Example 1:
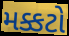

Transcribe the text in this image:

મક્કટો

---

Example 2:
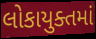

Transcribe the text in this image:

લોકાયુક્તમાં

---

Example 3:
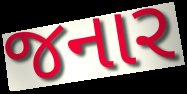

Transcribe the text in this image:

જનાર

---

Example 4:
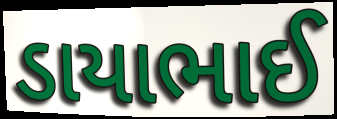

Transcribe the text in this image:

ડાયાભાઈ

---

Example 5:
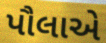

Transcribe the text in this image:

પૌલાએ